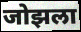
जोझला